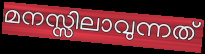
മനസ്സിലാവുന്നത്